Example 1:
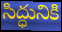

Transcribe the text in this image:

సిద్ధునికి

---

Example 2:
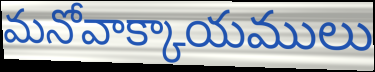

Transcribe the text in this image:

మనోవాక్కాయములు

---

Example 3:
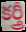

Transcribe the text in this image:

కర్త్రీ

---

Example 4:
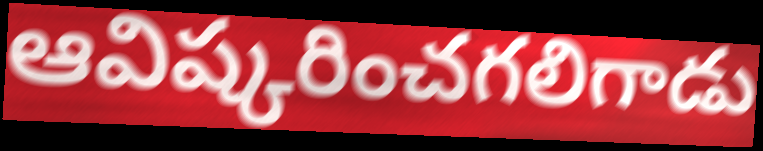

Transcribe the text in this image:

ఆవిష్కరించగలిగాడు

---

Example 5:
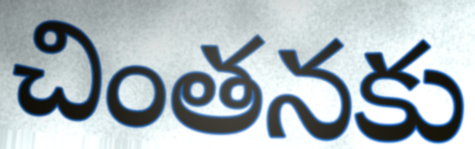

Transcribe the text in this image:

చింతనకు